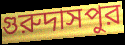
গুরুদাসপুর